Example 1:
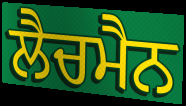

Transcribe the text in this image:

ਲੈਚਮੈਨ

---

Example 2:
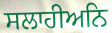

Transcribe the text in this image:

ਸਲਾਹੀਅਨਿ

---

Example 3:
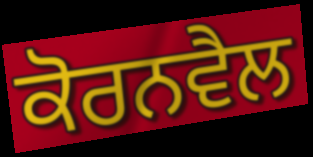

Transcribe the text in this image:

ਕੋਰਨਵੈਲ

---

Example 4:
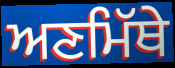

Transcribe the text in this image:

ਅਣਮਿੱਥੇ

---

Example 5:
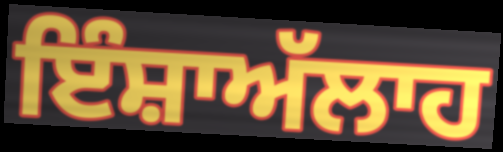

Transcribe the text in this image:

ਇੰਸ਼ਾਅੱਲਾਹ